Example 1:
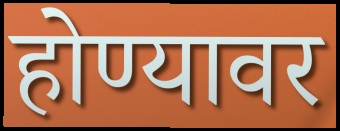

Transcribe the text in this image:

होण्यावर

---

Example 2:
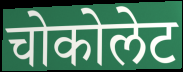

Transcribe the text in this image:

चोकोलेट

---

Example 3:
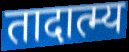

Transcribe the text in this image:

तादात्म्य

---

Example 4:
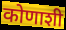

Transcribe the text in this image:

कोणाशी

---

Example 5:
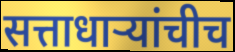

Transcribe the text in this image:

सत्ताधाऱ्यांचीच